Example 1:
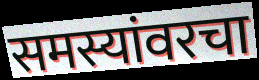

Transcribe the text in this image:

समस्यांवरचा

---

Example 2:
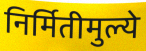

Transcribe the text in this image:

निर्मितीमुल्ये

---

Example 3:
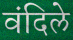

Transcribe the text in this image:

वंदिले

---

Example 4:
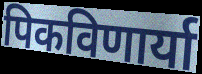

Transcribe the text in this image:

पिकविणार्या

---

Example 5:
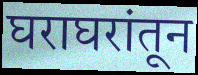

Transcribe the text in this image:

घराघरांतून